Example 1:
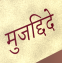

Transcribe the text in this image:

मुजद्दिदे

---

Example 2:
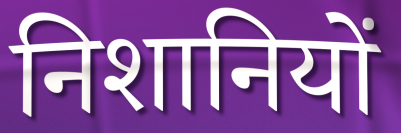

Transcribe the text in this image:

निशानियों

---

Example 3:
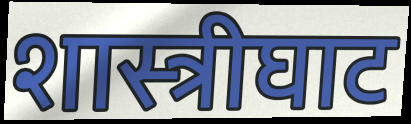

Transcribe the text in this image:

शास्त्रीघाट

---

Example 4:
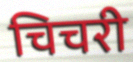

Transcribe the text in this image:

चिचरी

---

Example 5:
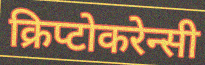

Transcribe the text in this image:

क्रिप्टोकरेन्सी